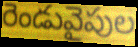
రెండువైపుల